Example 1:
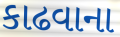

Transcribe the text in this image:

કાઢવાના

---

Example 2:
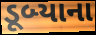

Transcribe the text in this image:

ડૂબ્યાના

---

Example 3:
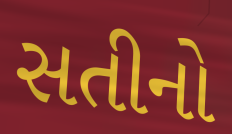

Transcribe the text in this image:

સતીનો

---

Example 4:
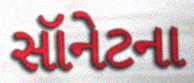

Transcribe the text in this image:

સૉનેટના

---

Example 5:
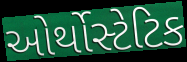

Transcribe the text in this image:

ઓર્થોસ્ટેટિક